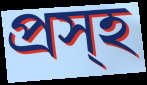
প্রস্হ